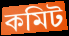
কমিট